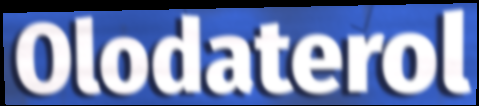
Olodaterol